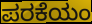
ಪರಕೆಯಂ